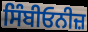
ਸਿੰਬੀਓਨੀਜ਼